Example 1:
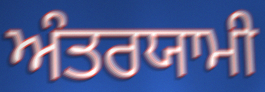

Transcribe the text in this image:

ਅੰਤਰਯਾਮੀ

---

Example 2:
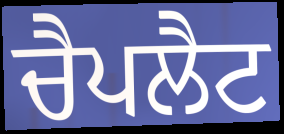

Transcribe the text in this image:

ਚੈਪਲੈਟ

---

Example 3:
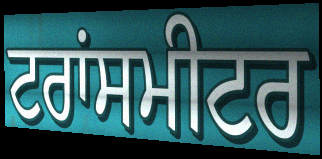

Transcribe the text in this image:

ਟਰਾਂਸਮੀਟਰ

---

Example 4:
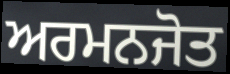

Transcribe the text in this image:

ਅਰਮਨਜੋਤ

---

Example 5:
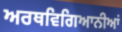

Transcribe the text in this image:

ਅਰਥਵਿਗਿਆਨੀਆਂ